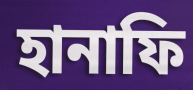
হানাফি